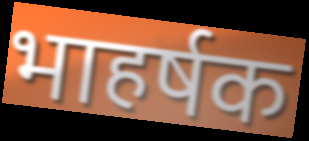
भाहर्षक